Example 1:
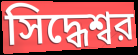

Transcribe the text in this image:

সিদ্ধেশ্বর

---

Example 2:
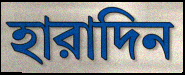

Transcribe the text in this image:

হারাদিন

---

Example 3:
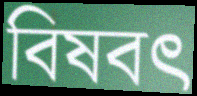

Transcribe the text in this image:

বিষবৎ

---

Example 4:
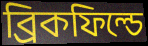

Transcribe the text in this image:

ব্রিকফিল্ডে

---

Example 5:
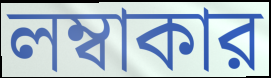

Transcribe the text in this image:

লম্বাকার